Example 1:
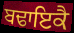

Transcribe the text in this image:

ਬਢਾਇਕੈ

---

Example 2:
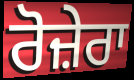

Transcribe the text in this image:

ਰੋਜ਼ੇਰਾ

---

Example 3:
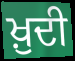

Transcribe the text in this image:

ਖ਼ੁਦੀ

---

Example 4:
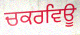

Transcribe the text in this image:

ਚਕਰਵਿਊ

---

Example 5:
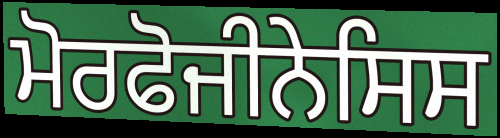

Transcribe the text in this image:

ਮੋਰਫੋਜੀਨੇਸਿਸ